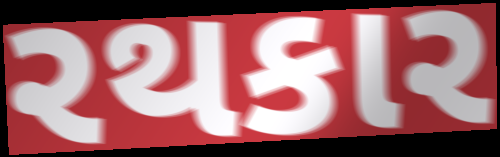
રથકાર